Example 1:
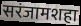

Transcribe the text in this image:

सरंजामशहा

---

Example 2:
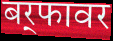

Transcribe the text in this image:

बर्फावर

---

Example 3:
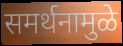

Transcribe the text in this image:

समर्थनामुळे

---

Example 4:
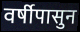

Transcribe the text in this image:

वर्षीपासुन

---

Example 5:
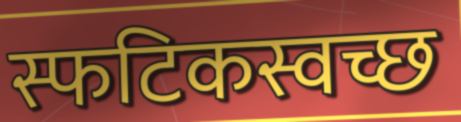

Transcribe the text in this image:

स्फटिकस्वच्छ